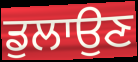
ਡੁਲਾਉਣ